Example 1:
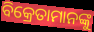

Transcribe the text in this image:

ବିକ୍ରେତାମାନଙ୍କୁ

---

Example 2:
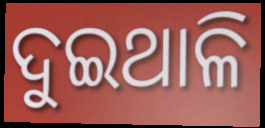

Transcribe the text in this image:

ଦୁଇଥାଳି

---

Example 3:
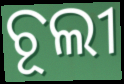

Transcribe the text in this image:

ଚୂଲୀ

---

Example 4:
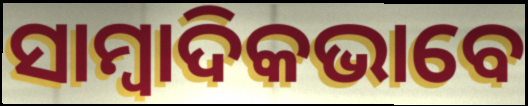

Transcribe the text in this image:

ସାମ୍ୱାଦିକଭାବେ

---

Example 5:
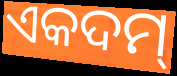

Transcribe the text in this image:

ଏକଦମ୍